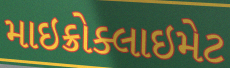
માઇક્રોક્લાઇમેટ